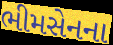
ભીમસેનના